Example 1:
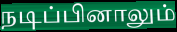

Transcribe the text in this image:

நடிப்பினாலும்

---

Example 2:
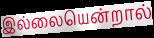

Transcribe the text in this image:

இல்லையென்றால்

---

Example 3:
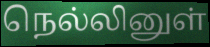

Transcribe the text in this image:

நெல்லினுள்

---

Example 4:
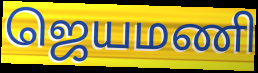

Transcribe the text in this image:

ஜெயமணி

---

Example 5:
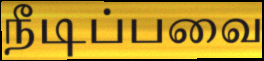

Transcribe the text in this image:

நீடிப்பவை